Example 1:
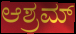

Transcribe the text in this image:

ಆಶ್ರಮ್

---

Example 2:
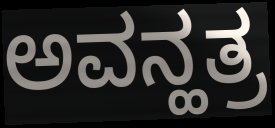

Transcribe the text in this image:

ಅವನ್ಹತ್ರ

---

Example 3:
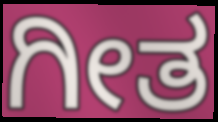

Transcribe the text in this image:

ಗೀತ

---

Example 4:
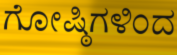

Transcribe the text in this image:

ಗೋಷ್ಠಿಗಳಿಂದ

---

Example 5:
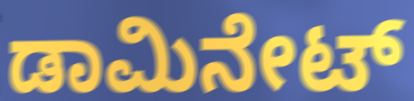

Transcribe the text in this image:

ಡಾಮಿನೇಟ್